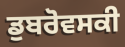
ਡੁਬਰੋਵਸਕੀ